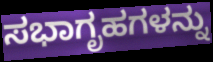
ಸಭಾಗೃಹಗಳನ್ನು